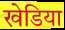
खेडिया